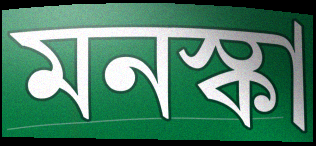
মনস্কা